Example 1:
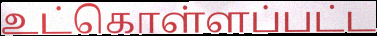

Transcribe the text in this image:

உட்கொள்ளப்பட்ட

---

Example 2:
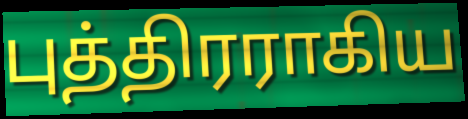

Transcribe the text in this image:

புத்திரராகிய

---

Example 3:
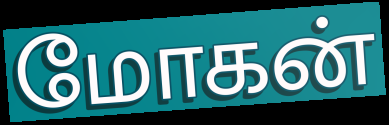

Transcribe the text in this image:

மோகன்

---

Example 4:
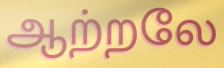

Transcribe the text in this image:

ஆற்றலே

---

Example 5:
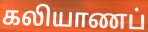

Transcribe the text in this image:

கலியாணப்